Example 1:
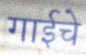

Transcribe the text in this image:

गाईचे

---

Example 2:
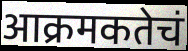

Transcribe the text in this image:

आक्रमकतेचं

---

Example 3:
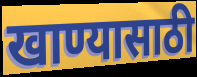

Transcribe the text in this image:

खाण्यासाठी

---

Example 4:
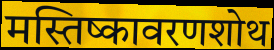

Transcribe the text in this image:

मस्तिष्कावरणशोथ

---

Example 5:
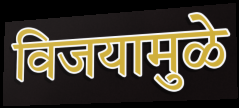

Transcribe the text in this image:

विजयामुळे